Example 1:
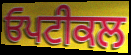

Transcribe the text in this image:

ਓਪਟੀਕਲ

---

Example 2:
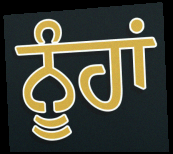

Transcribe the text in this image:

ਨੂੰਹਾਂ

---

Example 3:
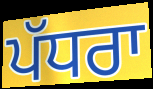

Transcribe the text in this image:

ਪੱਧਰਾ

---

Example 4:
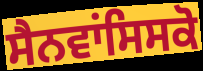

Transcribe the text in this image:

ਸੈਨਵਾਂਸਿਸਕੋ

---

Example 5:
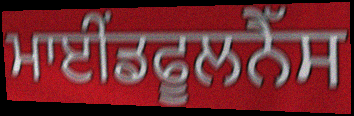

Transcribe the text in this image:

ਮਾਈਂਡਫੂਲਨੈੱਸ